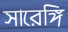
সারেঙ্গি